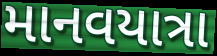
માનવયાત્રા